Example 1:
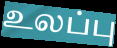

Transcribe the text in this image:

உலப்பு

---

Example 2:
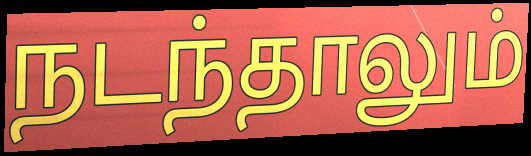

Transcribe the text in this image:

நடந்தாலும்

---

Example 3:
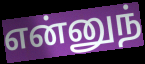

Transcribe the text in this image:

என்னுந்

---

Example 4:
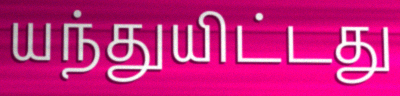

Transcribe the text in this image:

யந்துயிட்டது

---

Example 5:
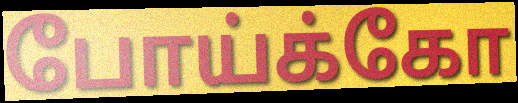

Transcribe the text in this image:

போய்க்கோ